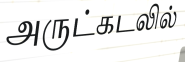
அருட்கடலில்